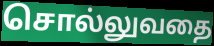
சொல்லுவதை